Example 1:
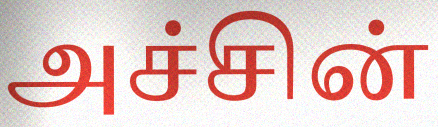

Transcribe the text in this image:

அச்சின்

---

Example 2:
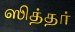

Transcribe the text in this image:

ஸித்தர்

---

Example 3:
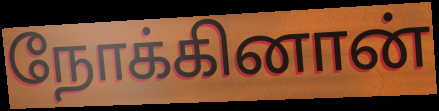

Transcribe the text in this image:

நோக்கினான்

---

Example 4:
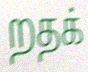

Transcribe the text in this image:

றதக்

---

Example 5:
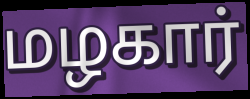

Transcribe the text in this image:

மழகார்